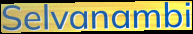
Selvanambi